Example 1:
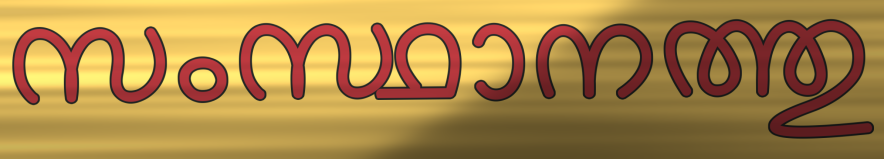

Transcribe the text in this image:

സംസ്ഥാനത്തു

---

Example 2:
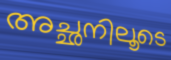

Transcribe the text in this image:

അച്ഛനിലൂടെ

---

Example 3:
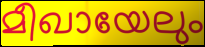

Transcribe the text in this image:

മീഖായേലും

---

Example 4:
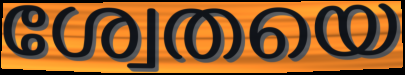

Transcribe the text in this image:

ശ്വേതയെ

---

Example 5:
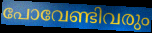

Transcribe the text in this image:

പോവേണ്ടിവരും